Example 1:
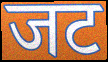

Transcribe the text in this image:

जट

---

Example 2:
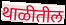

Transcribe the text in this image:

थाळीतील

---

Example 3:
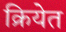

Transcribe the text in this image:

क्रियेत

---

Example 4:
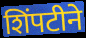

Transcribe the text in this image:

शिंपटीने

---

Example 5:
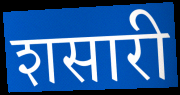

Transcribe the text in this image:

शसारी